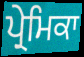
ਪ੍ਰੇਮਿਕਾ